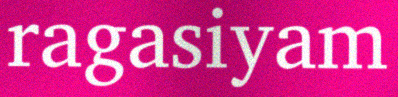
ragasiyam